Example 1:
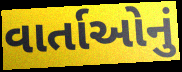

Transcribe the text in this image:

વાર્તાઓનું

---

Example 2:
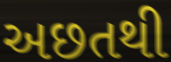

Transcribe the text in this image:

અછતથી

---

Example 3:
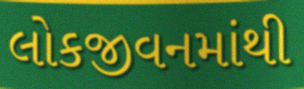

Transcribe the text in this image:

લોકજીવનમાંથી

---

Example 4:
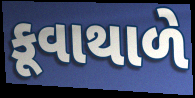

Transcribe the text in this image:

કૂવાથાળે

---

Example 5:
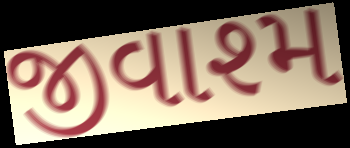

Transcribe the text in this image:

જીવાશ્મ